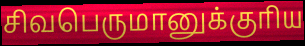
சிவபெருமானுக்குரிய